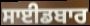
ਸਾਈਡਬਾਰ